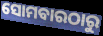
ସୋମବାରଠାରୁ